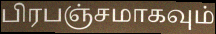
பிரபஞ்சமாகவும்